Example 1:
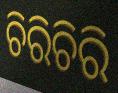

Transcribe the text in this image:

ଚିରିଚିରି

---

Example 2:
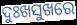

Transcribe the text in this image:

ଦୁଃଖସୁଖରେ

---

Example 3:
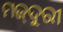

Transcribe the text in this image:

ମଜ୍‌ଦୁରୀ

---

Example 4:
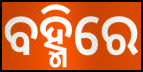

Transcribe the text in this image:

ବହ୍ମିରେ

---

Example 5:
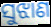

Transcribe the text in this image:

ସୁଝାଣ